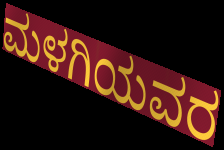
ಮಳಗಿಯವರ